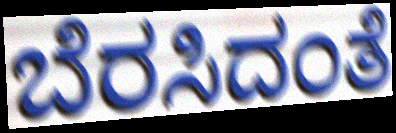
ಬೆರಸಿದಂತೆ